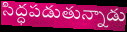
సిద్ధపడుతున్నాడు